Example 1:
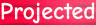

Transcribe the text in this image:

Projected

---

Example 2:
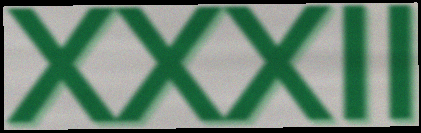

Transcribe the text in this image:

XXXII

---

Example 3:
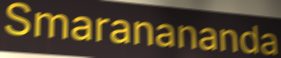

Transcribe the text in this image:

Smaranananda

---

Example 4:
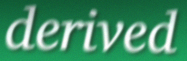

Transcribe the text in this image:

derived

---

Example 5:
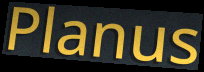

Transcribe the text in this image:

Planus